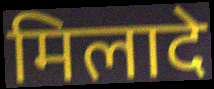
मिलादे